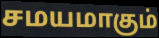
சமயமாகும்